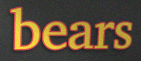
bears